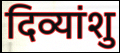
दिव्यांशु